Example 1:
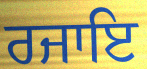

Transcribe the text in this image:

ਰਜਾਇ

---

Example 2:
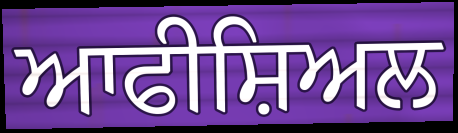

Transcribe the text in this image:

ਆਫੀਸ਼ਿਅਲ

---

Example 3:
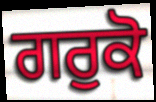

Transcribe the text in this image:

ਗਰੁਕੋ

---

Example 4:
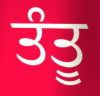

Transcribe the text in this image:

ਤੰਤੂ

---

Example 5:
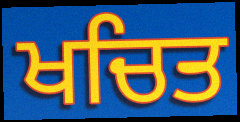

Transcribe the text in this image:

ਖਚਿਤ